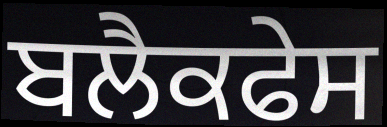
ਬਲੈਕਫੇਸ